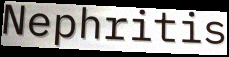
Nephritis